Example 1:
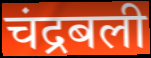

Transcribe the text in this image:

चंद्रबली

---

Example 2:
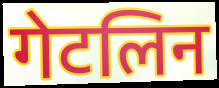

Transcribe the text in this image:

गेटलिन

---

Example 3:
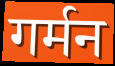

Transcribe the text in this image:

गर्मन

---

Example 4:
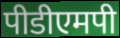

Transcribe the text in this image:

पीडीएमपी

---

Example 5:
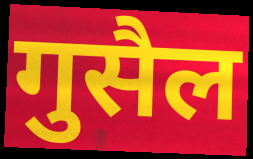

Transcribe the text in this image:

गुसैल